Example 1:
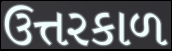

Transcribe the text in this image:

ઉત્તરકાળ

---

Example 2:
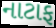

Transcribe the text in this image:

નાટાફ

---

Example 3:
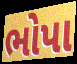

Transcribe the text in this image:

ભોપા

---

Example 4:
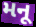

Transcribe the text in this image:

મનૂ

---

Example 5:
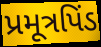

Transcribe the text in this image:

પ્રમૂત્રપિંડ